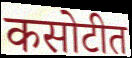
कसोटीत